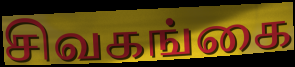
சிவகங்கை